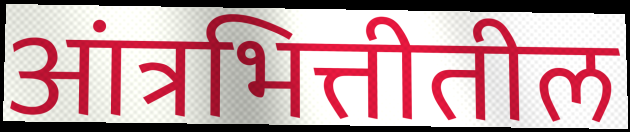
आंत्रभित्तीतील